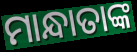
ମାନ୍ଧାତାଙ୍କ